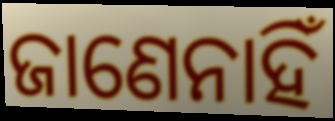
ଜାଣେନାହିଁ